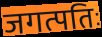
जगत्पतिः